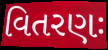
વિતરણઃ